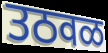
उठवळ